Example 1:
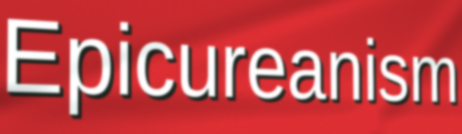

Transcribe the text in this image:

Epicureanism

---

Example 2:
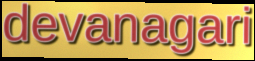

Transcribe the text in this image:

devanagari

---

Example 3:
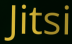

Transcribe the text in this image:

Jitsi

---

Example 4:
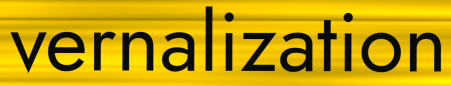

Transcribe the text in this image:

vernalization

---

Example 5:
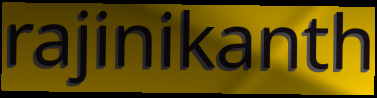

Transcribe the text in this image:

rajinikanth